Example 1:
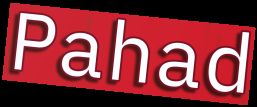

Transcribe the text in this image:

Pahad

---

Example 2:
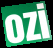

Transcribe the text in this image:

ozi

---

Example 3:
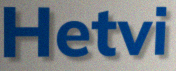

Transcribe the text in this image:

Hetvi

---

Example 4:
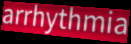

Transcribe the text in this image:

arrhythmia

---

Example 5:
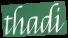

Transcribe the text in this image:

thadi